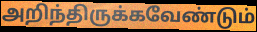
அறிந்திருக்கவேண்டும்